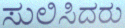
ಸುಲಿಸಿದರು